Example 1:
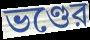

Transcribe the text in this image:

ভণ্ডের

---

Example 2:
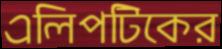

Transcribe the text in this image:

এলিপটিকের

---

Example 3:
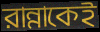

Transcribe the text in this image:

রান্নাকেই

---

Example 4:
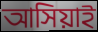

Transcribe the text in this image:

আসিয়াই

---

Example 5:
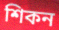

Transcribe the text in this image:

শিকন